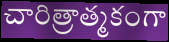
చారిత్రాత్మకంగా